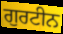
ਗੁਰਟੀਨ